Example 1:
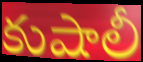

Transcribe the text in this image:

కుషాలీ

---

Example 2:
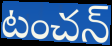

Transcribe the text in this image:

టంచన్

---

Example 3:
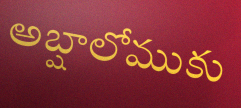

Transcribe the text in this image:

అబ్షాలోముకు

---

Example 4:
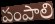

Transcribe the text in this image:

పంపాలి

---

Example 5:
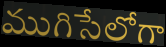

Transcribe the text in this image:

ముగిసేలోగా